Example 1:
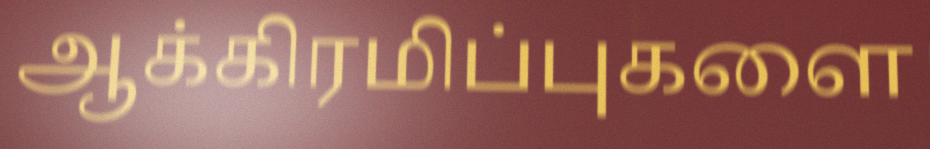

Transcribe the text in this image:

ஆக்கிரமிப்புகளை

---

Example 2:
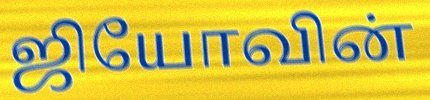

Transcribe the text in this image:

ஜியோவின்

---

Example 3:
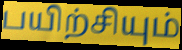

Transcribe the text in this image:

பயிற்சியும்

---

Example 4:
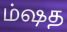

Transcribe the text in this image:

ம்ஷத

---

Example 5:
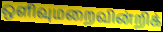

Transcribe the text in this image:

ஒளிவுமறைவின்றிக்